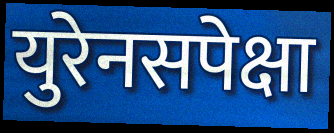
युरेनसपेक्षा